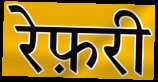
रेफ़री